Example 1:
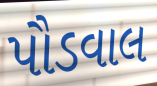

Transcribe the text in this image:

પૌડવાલ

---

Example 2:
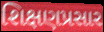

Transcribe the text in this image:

શિક્ષણપ્રસાર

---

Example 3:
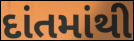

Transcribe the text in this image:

દાંતમાંથી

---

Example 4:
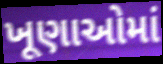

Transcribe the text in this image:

ખૂણાઓમાં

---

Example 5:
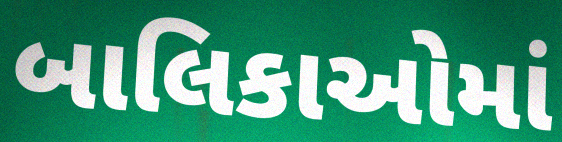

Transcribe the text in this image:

બાલિકાઓમાં